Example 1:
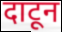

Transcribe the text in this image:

दाटून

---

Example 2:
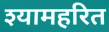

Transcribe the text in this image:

श्यामहरित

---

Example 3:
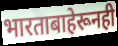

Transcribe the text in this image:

भारताबाहेरूनही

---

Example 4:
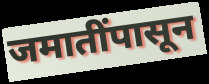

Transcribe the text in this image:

जमातींपासून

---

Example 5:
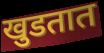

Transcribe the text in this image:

खुडतात